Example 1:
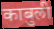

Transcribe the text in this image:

काबुली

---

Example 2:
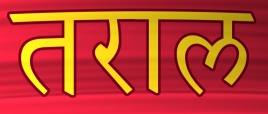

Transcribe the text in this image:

तराल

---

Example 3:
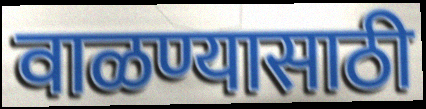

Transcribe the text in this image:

वाळण्यासाठी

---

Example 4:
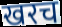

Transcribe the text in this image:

खरच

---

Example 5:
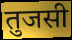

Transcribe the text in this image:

तुजसी